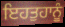
ਇਹਤੁਹਾਨੂੰ